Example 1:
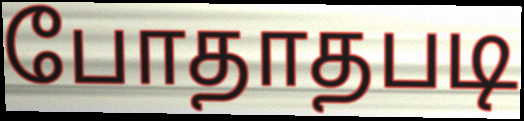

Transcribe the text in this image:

போதாதபடி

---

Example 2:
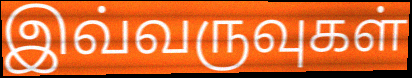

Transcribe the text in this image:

இவ்வருவுகள்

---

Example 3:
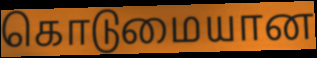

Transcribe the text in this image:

கொடுமையான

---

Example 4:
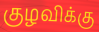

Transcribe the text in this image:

குழவிக்கு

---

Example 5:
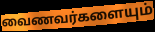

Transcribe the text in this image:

வைணவர்களையும்